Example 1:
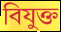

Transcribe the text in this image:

বিযুক্ত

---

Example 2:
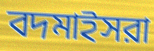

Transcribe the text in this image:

বদমাইসরা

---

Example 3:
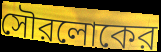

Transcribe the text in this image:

সৌরলোকের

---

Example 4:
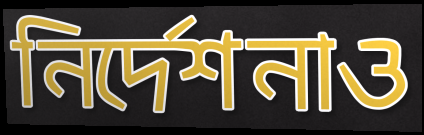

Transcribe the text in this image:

নির্দেশনাও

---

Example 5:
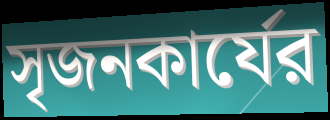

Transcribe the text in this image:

সৃজনকার্যের